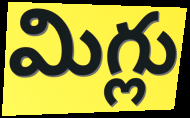
మిగ్లు